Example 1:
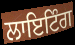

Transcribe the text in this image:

ਲਾਇਟਿੰਗ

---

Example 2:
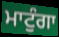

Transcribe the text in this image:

ਮਾਟੁੰਗਾ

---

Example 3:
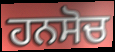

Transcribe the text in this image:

ਹਨਸੋਚ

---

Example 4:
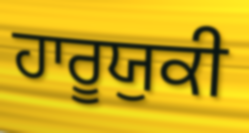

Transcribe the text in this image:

ਹਾਰੂਯੁਕੀ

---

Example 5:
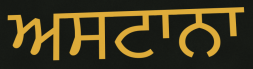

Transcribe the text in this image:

ਅਸਟਾਨਾ